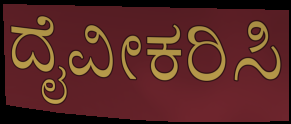
ದೈವೀಕರಿಸಿ